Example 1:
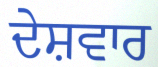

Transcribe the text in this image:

ਦੇਸ਼ਵਾਰ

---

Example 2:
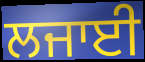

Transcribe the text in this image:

ਲਜਾਈ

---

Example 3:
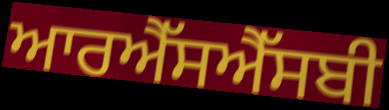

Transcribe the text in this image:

ਆਰਐੱਸਐੱਸਬੀ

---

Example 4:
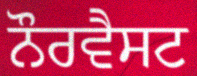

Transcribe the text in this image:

ਨੌਰਵੈਸਟ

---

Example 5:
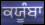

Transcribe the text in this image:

ਕਯੂੰਬਾ